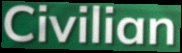
Civilian